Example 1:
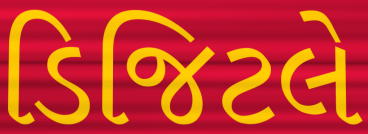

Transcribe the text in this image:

ડિજિટલે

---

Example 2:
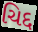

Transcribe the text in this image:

ચિદ્દ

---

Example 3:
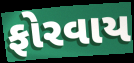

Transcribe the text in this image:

ફોરવાય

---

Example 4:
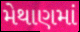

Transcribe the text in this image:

મેથાણમાં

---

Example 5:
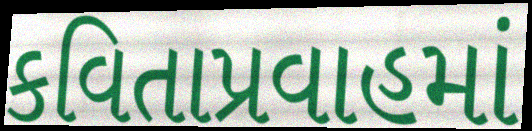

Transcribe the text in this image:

કવિતાપ્રવાહમાં